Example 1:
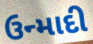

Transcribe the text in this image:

ઉન્માદી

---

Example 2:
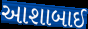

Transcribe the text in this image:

આશાબાઈ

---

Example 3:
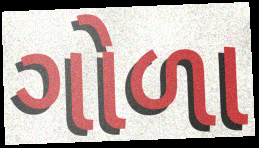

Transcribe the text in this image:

ગોળા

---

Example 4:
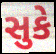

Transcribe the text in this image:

સુકે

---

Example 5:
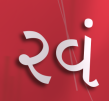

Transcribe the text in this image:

રવં